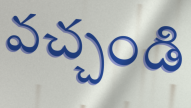
వచ్చండి